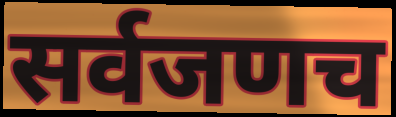
सर्वजणच